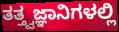
ತತ್ತ್ವಜ್ಞಾನಿಗಳಲ್ಲಿ